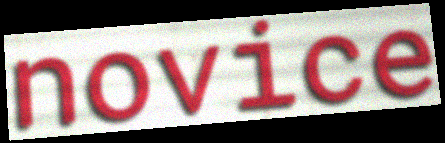
novice